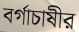
বর্গাচাষীর